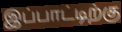
இப்பாட்டிற்கு